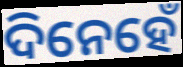
ଦିନେହେଁ